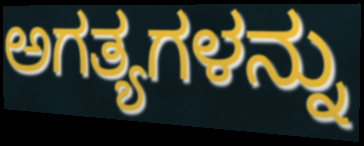
ಅಗತ್ಯಗಳನ್ನು